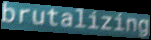
brutalizing